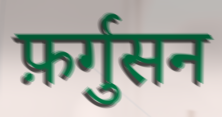
फ़र्गुसन